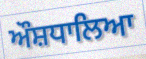
ਔਸ਼ਧਾਲਿਆ